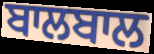
ਬਾਲਬਾਲ